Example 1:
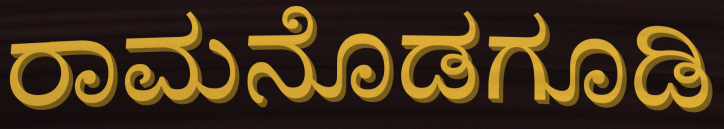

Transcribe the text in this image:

ರಾಮನೊಡಗೂಡಿ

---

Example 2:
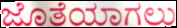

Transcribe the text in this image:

ಜೊತೆಯಾಗಲು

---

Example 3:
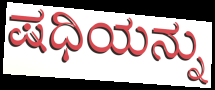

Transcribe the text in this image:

ಷಧಿಯನ್ನು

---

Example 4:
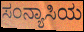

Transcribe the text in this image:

ಸಂನ್ಯಾಸಿಯ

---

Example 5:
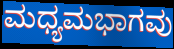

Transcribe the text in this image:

ಮಧ್ಯಮಭಾಗವು